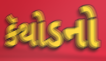
કૅથોડનો